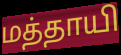
மத்தாயி